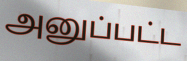
அனுப்பட்ட